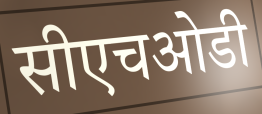
सीएचओडी